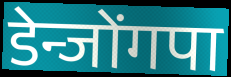
डेन्जोंगपा